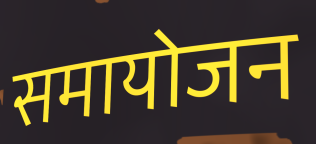
समायोजन